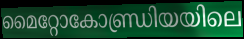
മൈറ്റോകോണ്ഡ്രിയയിലെ